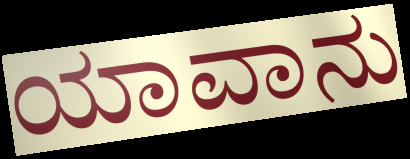
ಯಾವಾನು